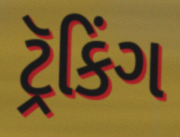
ટ્રૅકિંગ